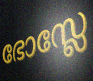
ഭോസ്ലേ